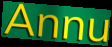
Annu